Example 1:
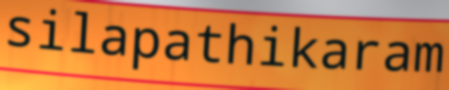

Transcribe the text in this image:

silapathikaram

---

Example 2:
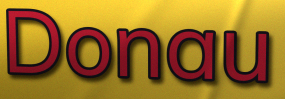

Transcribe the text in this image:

Donau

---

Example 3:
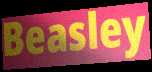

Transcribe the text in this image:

Beasley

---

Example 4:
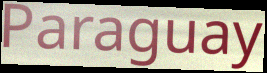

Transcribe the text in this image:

Paraguay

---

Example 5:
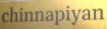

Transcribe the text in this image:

chinnapiyan